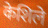
केशिले